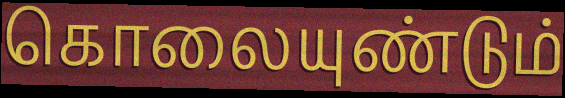
கொலையுண்டும்